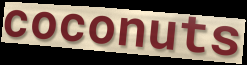
coconuts